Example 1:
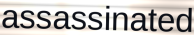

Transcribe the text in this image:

assassinated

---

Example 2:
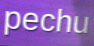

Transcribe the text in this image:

pechu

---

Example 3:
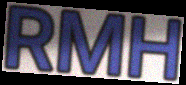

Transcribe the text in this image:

RMH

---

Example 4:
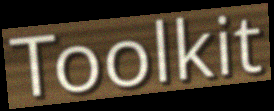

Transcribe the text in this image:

Toolkit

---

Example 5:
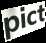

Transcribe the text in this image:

pict